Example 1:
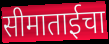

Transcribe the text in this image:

सीमाताईचा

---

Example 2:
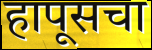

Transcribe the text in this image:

हापूसचा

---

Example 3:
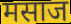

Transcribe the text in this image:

मसाज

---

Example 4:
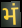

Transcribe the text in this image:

भं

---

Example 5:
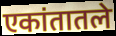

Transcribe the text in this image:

एकांतातले